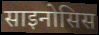
साइनोसिस